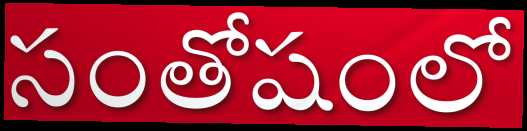
సంతోషంలో